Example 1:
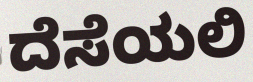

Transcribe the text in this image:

ದೆಸೆಯಲಿ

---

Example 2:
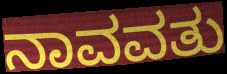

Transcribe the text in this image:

ನಾವವತು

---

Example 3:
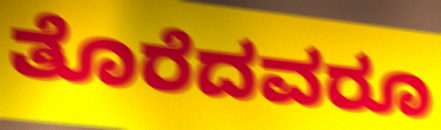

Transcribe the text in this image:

ತೊರೆದವರೂ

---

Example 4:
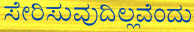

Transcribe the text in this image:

ಸೇರಿಸುವುದಿಲ್ಲವೆಂದು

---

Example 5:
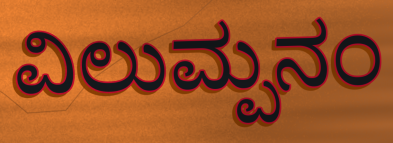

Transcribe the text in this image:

ವಿಲುಮ್ಪನಂ